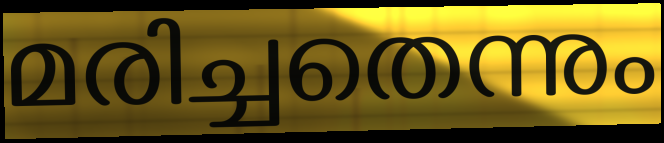
മരിച്ചതെന്നും